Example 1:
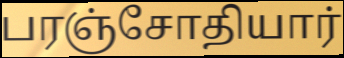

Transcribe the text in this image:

பரஞ்சோதியார்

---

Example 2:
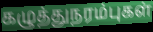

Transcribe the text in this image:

கழுத்துநரம்புகள்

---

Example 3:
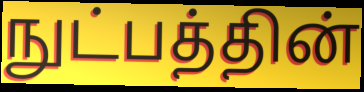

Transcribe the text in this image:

நுட்பத்தின்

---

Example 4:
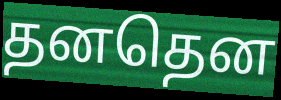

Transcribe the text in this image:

தனதென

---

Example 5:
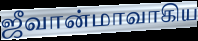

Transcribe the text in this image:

ஜீவான்மாவாகிய